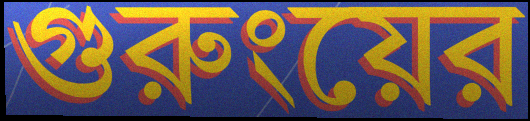
গুরুংয়ের